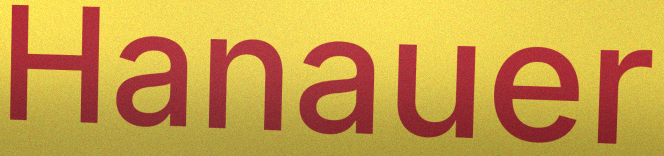
Hanauer